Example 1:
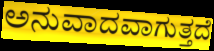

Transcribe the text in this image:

ಅನುವಾದವಾಗುತ್ತದೆ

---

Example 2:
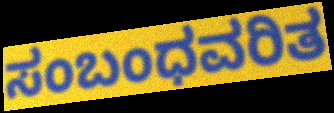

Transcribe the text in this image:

ಸಂಬಂಧವರಿತ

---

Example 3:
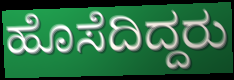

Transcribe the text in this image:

ಹೊಸೆದಿದ್ದರು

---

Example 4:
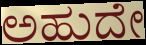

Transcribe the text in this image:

ಅಹುದೇ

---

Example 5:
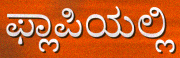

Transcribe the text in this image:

ಫ್ಲಾಪಿಯಲ್ಲಿ